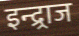
इन्द्र्राज